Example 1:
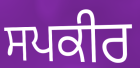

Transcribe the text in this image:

ਸਪਕੀਰ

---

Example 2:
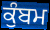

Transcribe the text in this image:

ਕੁੰਬਮ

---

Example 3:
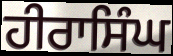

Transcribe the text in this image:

ਹੀਰਾਸਿੰਘ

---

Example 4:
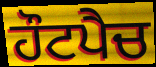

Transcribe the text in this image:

ਹੌਟਪੈਚ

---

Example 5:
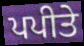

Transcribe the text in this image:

ਪਪੀਤੇ